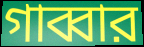
গাব্বার